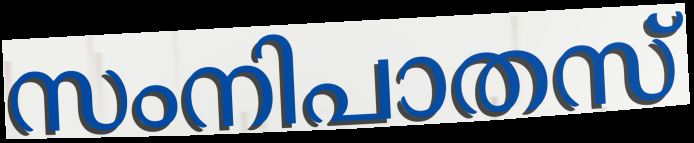
സംനിപാതസ്